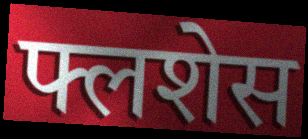
फ्लशेस